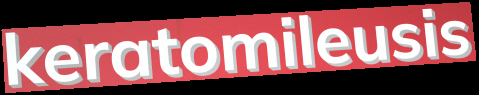
keratomileusis